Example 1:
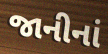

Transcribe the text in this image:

જાનીનાં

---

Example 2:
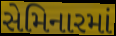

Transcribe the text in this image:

સેમિનારમાં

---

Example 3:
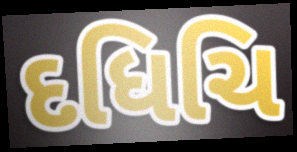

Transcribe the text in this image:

દધિચિ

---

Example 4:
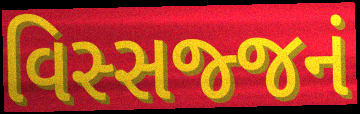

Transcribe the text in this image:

વિસ્સજ્જનં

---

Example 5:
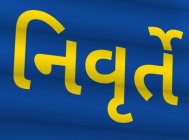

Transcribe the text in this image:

નિવૃર્તે